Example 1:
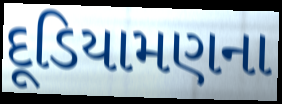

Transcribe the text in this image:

દૂડિયામણના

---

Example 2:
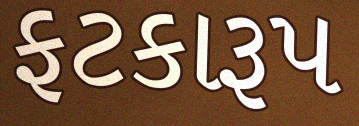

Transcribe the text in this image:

ફટકારૂપ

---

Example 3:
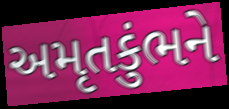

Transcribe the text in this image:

અમૃતકુંભને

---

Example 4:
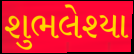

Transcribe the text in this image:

શુભલેશ્યા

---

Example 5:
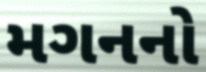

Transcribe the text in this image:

મગનનો